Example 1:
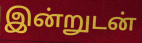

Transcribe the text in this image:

இன்றுடன்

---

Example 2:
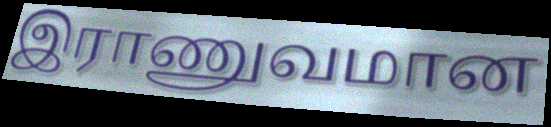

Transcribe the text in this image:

இராணுவமான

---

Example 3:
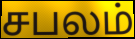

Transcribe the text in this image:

சபலம்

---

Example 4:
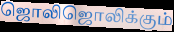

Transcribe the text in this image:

ஜொலிஜொலிக்கும்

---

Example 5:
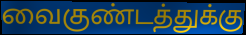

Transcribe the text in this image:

வைகுண்டத்துக்கு